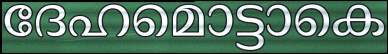
ദേഹമൊട്ടാകെ